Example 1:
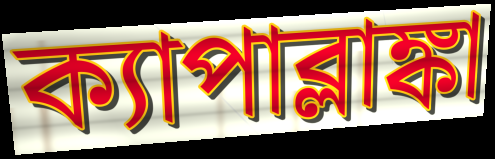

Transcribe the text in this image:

ক্যাপাব্লাঙ্কা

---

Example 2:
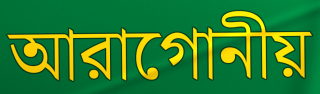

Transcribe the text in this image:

আরাগোনীয়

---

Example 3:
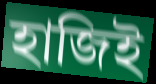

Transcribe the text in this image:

হাজিই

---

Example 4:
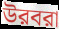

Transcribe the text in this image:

উরবরা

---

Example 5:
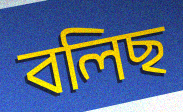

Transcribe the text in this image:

বলিছ